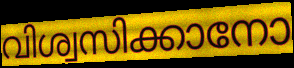
വിശ്വസിക്കാനോ